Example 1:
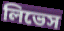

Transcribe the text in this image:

লিভেস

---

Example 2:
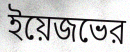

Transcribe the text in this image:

ইয়েজভের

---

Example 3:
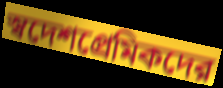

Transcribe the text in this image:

স্বদেশপ্রেমিকদের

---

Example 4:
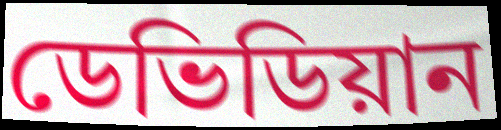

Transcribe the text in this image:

ডেভিডিয়ান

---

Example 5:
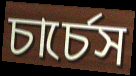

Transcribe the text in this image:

চার্চেস